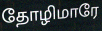
தோழிமாரே